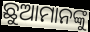
ଛୁଆମାନଙ୍କୁ